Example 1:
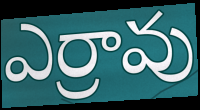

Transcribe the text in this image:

ఎర్రావు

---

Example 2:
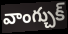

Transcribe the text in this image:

వాంగ్చుక్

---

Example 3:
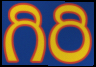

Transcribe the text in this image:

గిరి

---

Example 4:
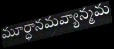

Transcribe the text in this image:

మూర్ధానమవ్యాన్మమ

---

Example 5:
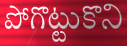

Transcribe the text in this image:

పోగొట్టుకొని